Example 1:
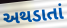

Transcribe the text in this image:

અથડાતાં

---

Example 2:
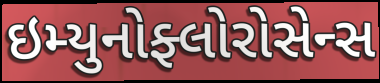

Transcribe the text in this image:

ઇમ્યુનોફ્લોરોસેન્સ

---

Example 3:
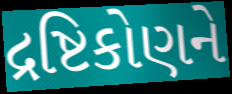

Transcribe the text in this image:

દ્રષ્ટિકોણને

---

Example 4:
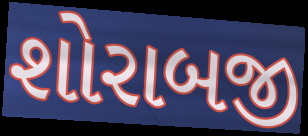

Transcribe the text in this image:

શોરાબજી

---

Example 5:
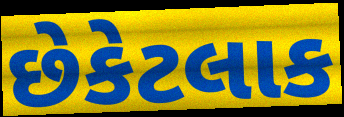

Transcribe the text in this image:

છેકેટલાક